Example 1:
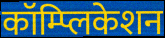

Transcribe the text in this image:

कॉम्प्लिकेशन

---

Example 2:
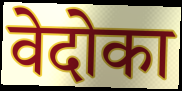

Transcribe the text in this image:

वेदोका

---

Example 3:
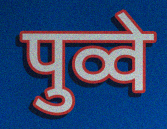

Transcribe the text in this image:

पुव्वे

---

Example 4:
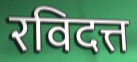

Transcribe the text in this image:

रविदत्त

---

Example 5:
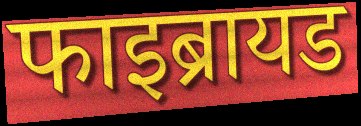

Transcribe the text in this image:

फाइब्रायड